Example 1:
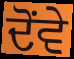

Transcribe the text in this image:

ਦੋਂਵੇ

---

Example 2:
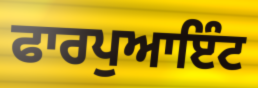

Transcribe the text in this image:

ਫਾਰਪੁਆਇੰਟ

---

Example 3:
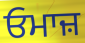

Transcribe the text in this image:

ਓਮਾਜ਼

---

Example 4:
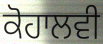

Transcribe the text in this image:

ਕੋਹਾਲਵੀ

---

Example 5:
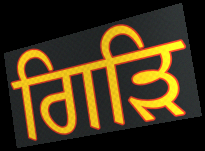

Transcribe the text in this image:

ਗਿੜਿ